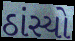
ઠાંસ્યો